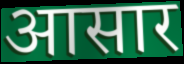
आसार